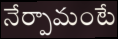
నేర్పామంటే